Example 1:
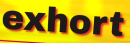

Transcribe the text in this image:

exhort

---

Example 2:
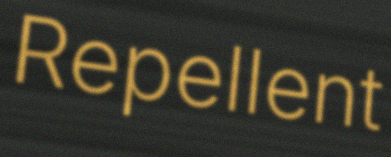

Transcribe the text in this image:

Repellent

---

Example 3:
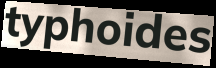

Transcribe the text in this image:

typhoides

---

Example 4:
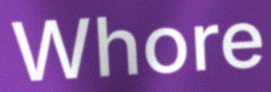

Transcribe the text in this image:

Whore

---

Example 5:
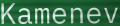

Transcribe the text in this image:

Kamenev